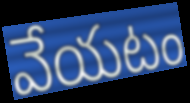
వేయటం